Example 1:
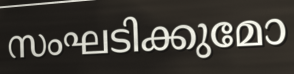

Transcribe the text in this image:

സംഘടിക്കുമോ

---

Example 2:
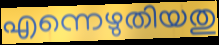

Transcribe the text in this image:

എന്നെഴുതിയതു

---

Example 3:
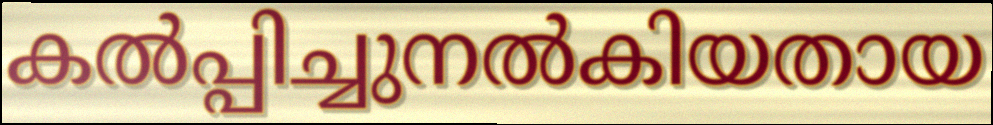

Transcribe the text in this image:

കൽപ്പിച്ചുനൽകിയതായ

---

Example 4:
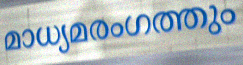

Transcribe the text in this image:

മാധ്യമരംഗത്തും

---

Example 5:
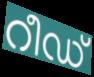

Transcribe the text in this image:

റീഡ്